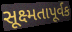
સૂક્ષ્મતાપૂર્વક